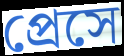
প্রেসে